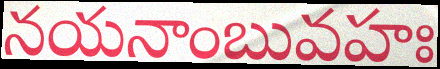
నయనాంబువహః